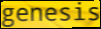
genesis